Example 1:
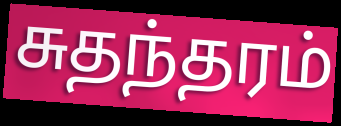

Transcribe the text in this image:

சுதந்தரம்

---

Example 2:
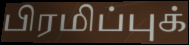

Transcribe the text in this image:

பிரமிப்புக்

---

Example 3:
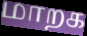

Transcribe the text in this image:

மாறக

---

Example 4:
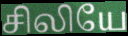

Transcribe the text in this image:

சிலியே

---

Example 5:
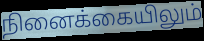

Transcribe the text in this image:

நினைக்கையிலும்